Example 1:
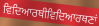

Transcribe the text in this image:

ਵਿਦਿਆਰਥੀਵਿਦਿਆਰਥਣਾਂ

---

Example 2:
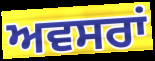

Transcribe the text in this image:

ਅਵਸਰਾਂ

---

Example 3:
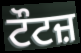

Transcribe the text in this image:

ਟੌਟਜ਼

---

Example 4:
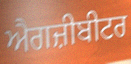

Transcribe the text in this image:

ਐਗਜ਼ੀਬੀਟਰ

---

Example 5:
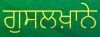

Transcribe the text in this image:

ਗੁਸਲਖ਼ਾਨੇ